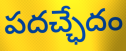
పదచ్ఛేదం